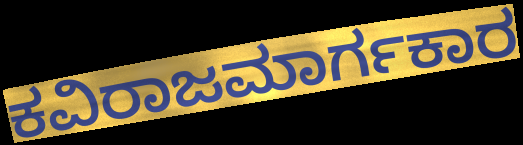
ಕವಿರಾಜಮಾರ್ಗಕಾರ